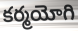
కర్మయోగి